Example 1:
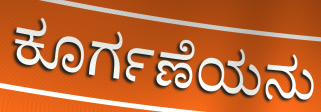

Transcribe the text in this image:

ಕೂರ್ಗಣೆಯನು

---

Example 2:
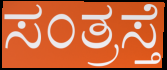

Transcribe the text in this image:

ಸಂತ್ರಸ್ತೆ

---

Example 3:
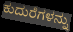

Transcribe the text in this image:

ಕುದುರೆಗಳನ್ನು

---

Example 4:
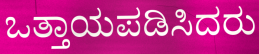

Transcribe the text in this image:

ಒತ್ತಾಯಪಡಿಸಿದರು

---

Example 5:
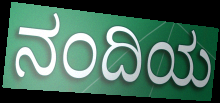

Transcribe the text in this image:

ನಂದಿಯ